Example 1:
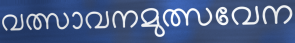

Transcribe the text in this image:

വത്സാവനമുത്സവേന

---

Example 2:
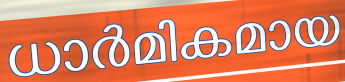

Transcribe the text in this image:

ധാർമികമായ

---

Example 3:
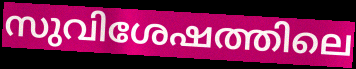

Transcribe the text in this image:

സുവിശേഷത്തിലെ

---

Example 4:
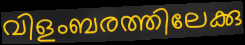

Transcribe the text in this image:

വിളംബരത്തിലേക്കു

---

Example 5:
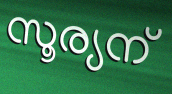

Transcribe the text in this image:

സൂര്യന്